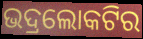
ଭଦ୍ରଲୋକଟିର